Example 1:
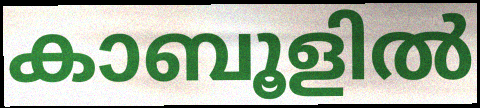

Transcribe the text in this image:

കാബൂളിൽ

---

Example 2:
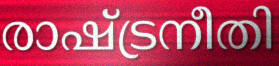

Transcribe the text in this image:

രാഷ്ട്രനീതി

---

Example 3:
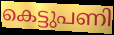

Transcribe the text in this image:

കെട്ടുപണി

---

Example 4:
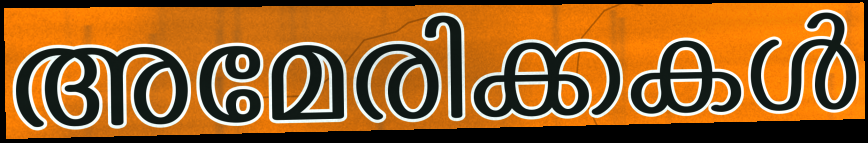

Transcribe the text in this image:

അമേരിക്കകൾ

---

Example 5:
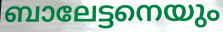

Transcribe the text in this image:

ബാലേട്ടനെയും